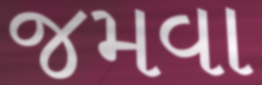
જમવા